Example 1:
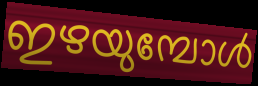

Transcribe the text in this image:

ഇഴയുമ്പോൾ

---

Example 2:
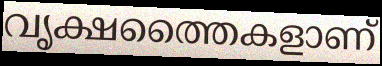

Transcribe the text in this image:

വൃക്ഷത്തൈകളാണ്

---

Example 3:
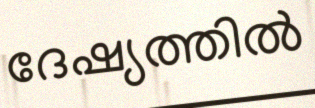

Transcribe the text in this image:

ദേഷ്യത്തിൽ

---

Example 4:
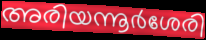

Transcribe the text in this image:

അരിയന്നൂർശേരി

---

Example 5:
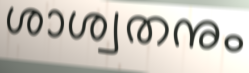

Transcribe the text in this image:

ശാശ്വതനും